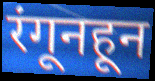
रंगूनहून